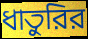
ধাতুরির